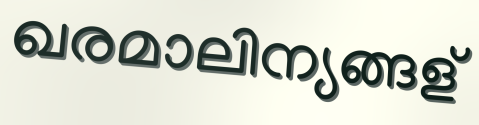
ഖരമാലിന്യങ്ങള്